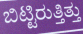
ಬಿಟ್ಟಿರುತ್ತಿತ್ತು